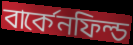
বার্কেনফিল্ড